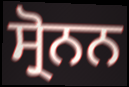
ਸ੍ਰੋਨਨ